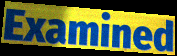
Examined